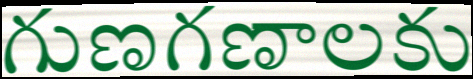
గుణగణాలకు